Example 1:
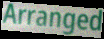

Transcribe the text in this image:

Arranged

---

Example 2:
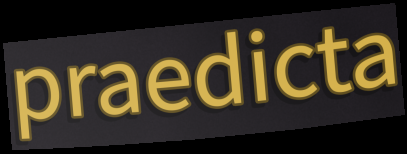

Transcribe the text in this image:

praedicta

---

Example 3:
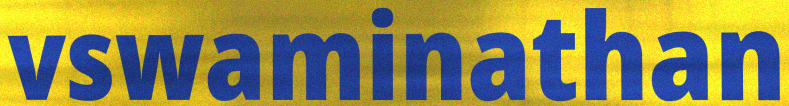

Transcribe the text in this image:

vswaminathan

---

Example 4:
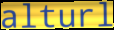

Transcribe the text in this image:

alturl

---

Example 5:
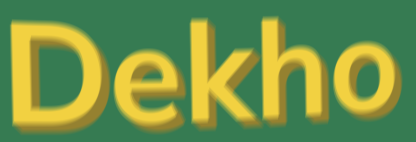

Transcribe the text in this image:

Dekho